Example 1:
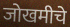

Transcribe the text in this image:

जोखमीचे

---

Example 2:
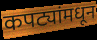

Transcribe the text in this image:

कपट्यांमधून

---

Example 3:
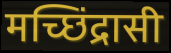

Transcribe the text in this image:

मच्छिंद्रासी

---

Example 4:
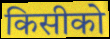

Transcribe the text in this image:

किसीको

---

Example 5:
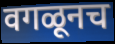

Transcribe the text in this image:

वगळूनच